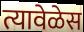
त्यावेळेस